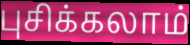
புசிக்கலாம்